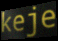
keje